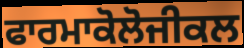
ਫਾਰਮਾਕੋਲੋਜੀਕਲ